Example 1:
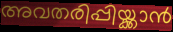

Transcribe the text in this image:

അവതരിപ്പിയ്ക്കാൻ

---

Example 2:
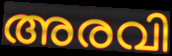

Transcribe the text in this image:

അരവി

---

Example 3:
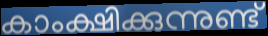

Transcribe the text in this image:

കാംക്ഷിക്കുന്നുണ്ട്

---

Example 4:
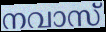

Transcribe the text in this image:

നവാസ്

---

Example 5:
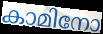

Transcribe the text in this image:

കാമിനോ